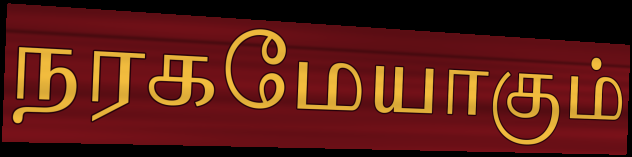
நரகமேயாகும்